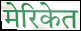
मेरिकेत